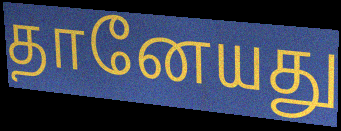
தானேயது